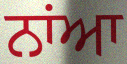
ਨਾਂਆ